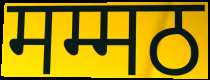
मम्मठ